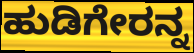
ಹುಡಿಗೇರನ್ನ